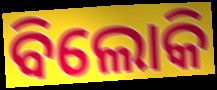
ବିଲୋକି